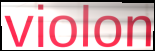
violon